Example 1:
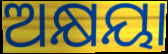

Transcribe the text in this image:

ଅକ୍ଷୟା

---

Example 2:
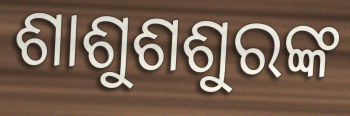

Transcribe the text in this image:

ଶାଶୁଶଶୁରଙ୍କ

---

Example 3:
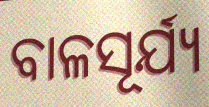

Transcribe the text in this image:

ବାଳସୂର୍ଯ୍ୟ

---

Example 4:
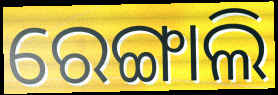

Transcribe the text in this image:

ରେଙ୍ଗାଲି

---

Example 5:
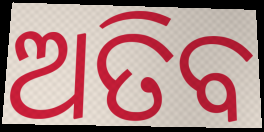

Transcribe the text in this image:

ଅତିବ